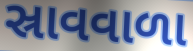
સ્રાવવાળા